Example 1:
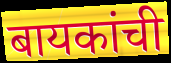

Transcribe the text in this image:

बायकांची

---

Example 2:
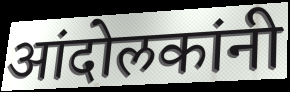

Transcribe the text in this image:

आंदोलकांनी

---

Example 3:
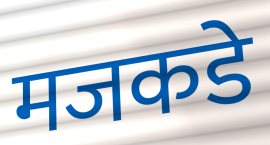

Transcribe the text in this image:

मजकडे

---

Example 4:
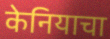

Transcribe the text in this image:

केनियाचा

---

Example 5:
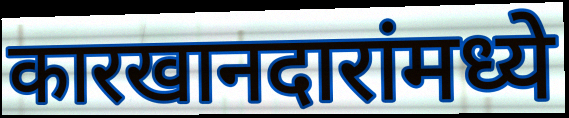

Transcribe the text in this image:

कारखानदारांमध्ये